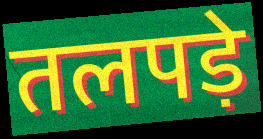
तलपड़े